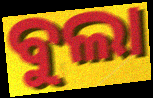
ବୁଲା